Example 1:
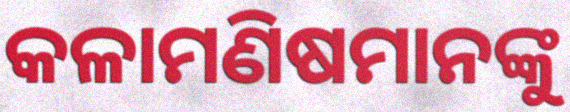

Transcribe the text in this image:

କଳାମଣିଷମାନଙ୍କୁ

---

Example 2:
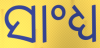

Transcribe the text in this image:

ସାଂଧ୍ୟ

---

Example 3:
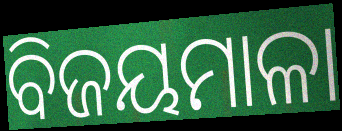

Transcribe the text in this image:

ବିଜୟମାଳା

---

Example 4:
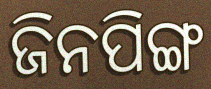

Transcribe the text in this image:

ଜିନପିଙ୍ଗ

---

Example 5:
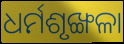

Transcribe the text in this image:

ଧର୍ମଶୃଙ୍ଖଳା